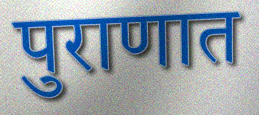
पुराणात